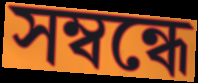
সম্বন্ধে